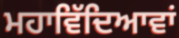
ਮਹਾਵਿੱਦਿਆਵਾਂ